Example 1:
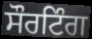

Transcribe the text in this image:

ਸੌਰਟਿੰਗ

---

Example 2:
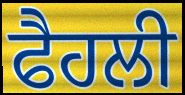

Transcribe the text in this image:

ਫੈਹਲੀ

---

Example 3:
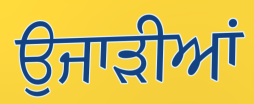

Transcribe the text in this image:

ਉਜਾੜੀਆਂ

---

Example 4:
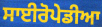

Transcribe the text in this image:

ਸਾਈਰੋਪੇਡੀਆ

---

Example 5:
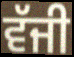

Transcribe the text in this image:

ਵੱਜੀ